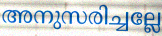
അനുസരിച്ചല്ലേ